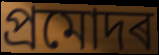
প্ৰমোদৰ